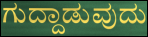
ಗುದ್ದಾಡುವುದು